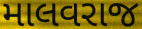
માલવરાજ